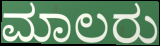
ಮಾಲರು